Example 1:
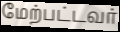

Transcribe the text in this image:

மேற்பட்டவர்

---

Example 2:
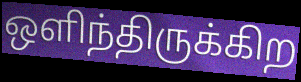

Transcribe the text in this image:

ஒளிந்திருக்கிற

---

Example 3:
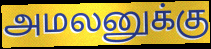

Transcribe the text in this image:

அமலனுக்கு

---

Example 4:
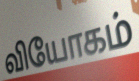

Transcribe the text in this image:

வியோகம்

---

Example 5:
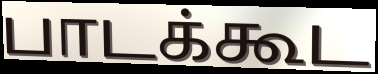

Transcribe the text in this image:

பாடக்கூட